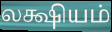
லக்ஷியம்